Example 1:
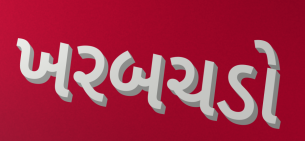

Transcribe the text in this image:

ખરબચડો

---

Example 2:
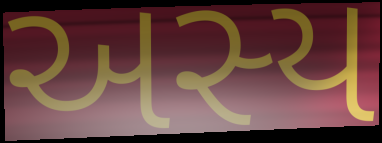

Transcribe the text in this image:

અસ્ય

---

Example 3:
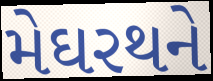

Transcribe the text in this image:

મેઘરથને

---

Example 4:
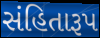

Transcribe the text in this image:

સંહિતારૂપ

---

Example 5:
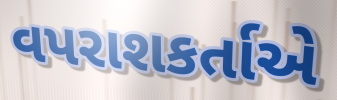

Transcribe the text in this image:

વપરાશકર્તાએ